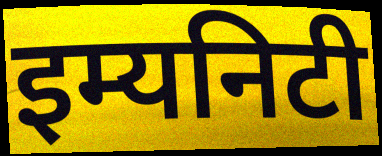
इम्यनिटी